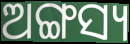
ଅଙ୍ଗସ୍ୟ